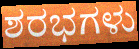
ಶರಭಗಳು